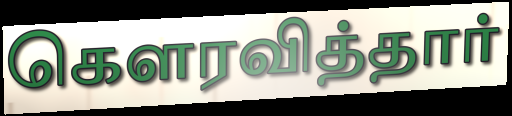
கௌரவித்தார்